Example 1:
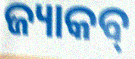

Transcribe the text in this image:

ଜ୍ୟାକବ୍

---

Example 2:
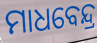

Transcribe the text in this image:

ମାଧବେନ୍ଦ୍ର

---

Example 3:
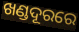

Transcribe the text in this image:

ଖଣ୍ଡଦୂରରେ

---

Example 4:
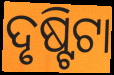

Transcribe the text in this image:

ଦୃଷ୍ଟିଟା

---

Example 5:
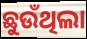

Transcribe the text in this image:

ଛୁଉଁଥିଲା